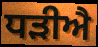
ਧੜੀਐ